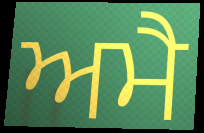
ਅਮੈ